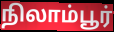
நிலாம்பூர்